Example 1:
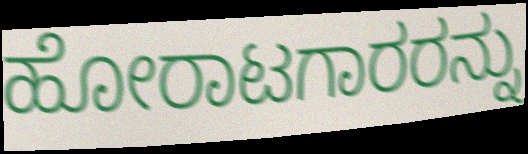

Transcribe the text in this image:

ಹೋರಾಟಗಾರರನ್ನು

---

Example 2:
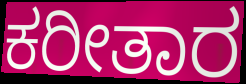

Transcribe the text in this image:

ಕರೀತಾರ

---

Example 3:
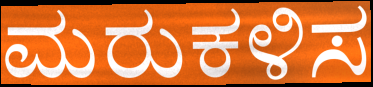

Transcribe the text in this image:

ಮರುಕಳಿಸ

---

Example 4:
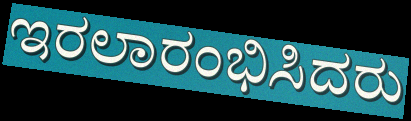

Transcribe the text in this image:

ಇರಲಾರಂಭಿಸಿದರು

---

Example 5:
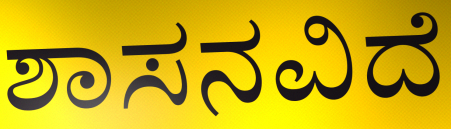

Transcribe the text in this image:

ಶಾಸನವಿದೆ